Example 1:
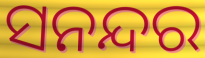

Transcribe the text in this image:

ସନନ୍ଦର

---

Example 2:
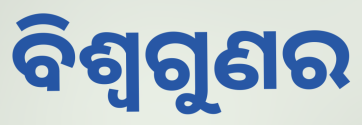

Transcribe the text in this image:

ବିଶ୍ୱଗୁଣର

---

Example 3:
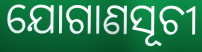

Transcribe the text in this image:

ଯୋଗାଣସୂଚୀ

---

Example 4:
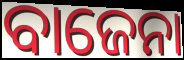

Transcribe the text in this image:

ବାଜେନା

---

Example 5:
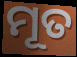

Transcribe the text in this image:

ମୂତ